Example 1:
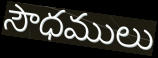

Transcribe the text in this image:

సౌధములు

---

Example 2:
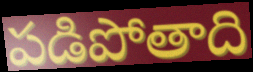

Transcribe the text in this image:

పడిపోతాది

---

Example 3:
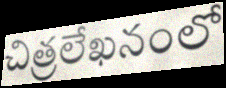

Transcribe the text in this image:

చిత్రలేఖనంలో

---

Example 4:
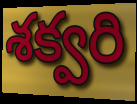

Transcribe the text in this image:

శక్వరి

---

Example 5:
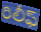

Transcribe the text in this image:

రిలీఫ్